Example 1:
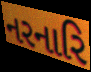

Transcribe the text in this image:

નરનારિ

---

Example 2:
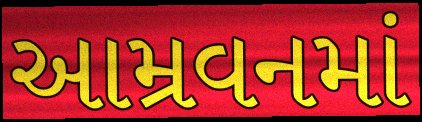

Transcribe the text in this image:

આમ્રવનમાં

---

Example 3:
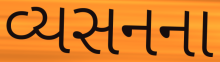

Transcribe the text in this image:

વ્યસનના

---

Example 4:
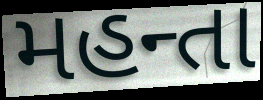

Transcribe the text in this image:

મહન્તા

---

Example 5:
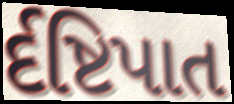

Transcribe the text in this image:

ર્દષ્ટિપાત